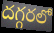
దగ్గరలో